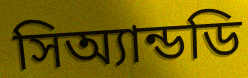
সিঅ্যান্ডডি